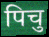
पिचु